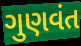
ગુણવંત